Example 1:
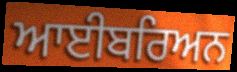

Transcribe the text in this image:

ਆਈਬਰਿਅਨ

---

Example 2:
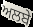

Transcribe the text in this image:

ਅਲਬੇ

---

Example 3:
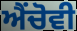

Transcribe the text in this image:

ਐਂਚੋਵੀ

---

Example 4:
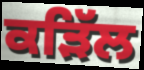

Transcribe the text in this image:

ਕੜਿੱਲ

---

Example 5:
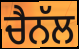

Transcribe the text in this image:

ਚੈਨੱਲ